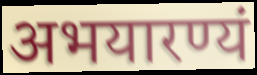
अभयारण्यं